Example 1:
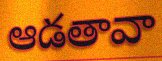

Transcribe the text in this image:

ఆడతావా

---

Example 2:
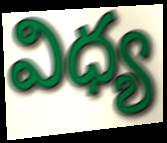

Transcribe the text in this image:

విధ్య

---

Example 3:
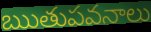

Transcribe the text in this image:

ఋతుపవనాలు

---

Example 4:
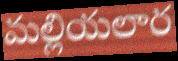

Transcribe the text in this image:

మల్లియలార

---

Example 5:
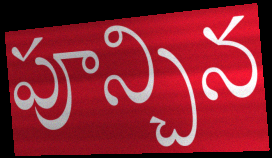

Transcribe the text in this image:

పూన్చిన